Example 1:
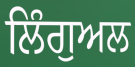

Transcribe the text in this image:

ਲਿੰਗੁਅਲ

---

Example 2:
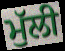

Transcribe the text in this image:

ਮੁੱਲੀ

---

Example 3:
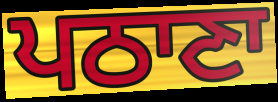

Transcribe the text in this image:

ਪਠਾਣਾ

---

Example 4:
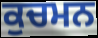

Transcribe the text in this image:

ਕੁਚਮਨ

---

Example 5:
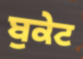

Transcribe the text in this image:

ਬੁਕੇਟ